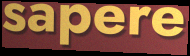
sapere